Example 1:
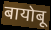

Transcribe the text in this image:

बायोबू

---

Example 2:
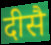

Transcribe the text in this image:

दीसै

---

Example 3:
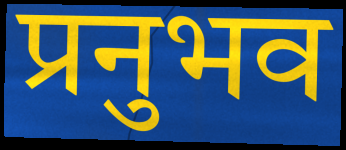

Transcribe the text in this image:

प्रनुभव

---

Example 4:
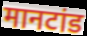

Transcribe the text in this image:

मानटांड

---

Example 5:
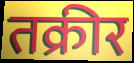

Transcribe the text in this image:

तक्रीर